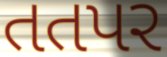
તતપર